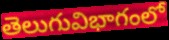
తెలుగువిభాగంలో